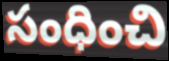
సంధించి